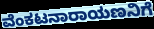
ವೆಂಕಟನಾರಾಯಣನಿಗೆ